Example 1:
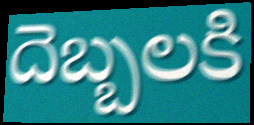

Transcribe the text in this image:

దెబ్బలకి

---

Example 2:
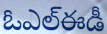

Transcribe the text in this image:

ఓఎల్ఈడీ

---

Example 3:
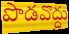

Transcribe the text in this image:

పొడవొద్దు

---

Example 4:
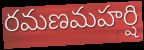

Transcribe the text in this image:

రమణమహర్షి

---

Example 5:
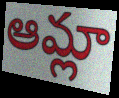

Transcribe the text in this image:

ఆమ్లా